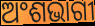
ଅଂଶଭାଗୀ